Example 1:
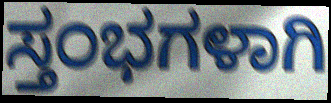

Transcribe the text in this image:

ಸ್ತಂಭಗಳಾಗಿ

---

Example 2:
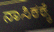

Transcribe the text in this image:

ನಾಸಿಕಕ್ಕೆ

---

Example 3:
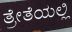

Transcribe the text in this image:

ತ್ರೇತೆಯಲ್ಲಿ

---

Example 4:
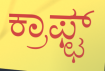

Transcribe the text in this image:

ಕ್ರಾಫ್ಟ್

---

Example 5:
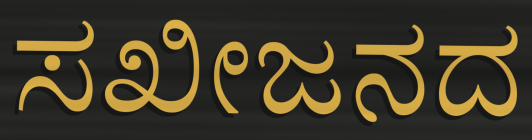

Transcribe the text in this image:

ಸಖೀಜನದ